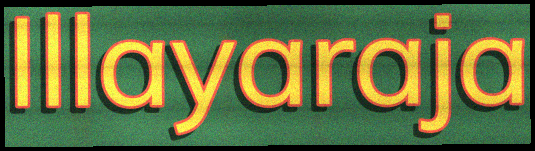
Illayaraja